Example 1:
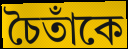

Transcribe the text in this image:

চৈতাঁকে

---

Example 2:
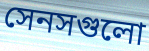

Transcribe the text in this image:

সেনসগুলো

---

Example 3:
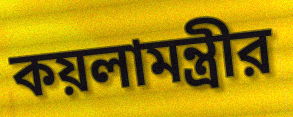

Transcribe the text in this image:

কয়লামন্ত্রীর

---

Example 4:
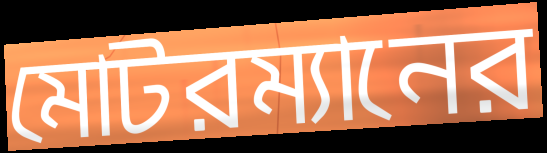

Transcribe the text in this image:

মোটরম্যানের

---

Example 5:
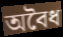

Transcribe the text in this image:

অবৈধ